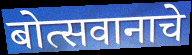
बोत्सवानाचे